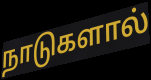
நாடுகளால்